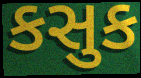
કસુક